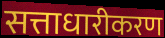
सत्ताधारीकरण